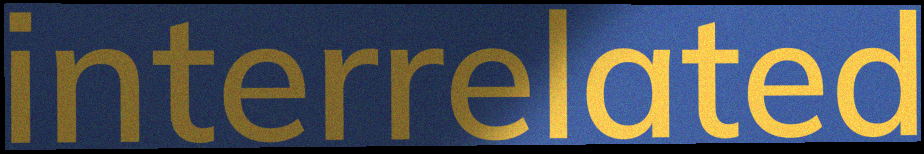
interrelated